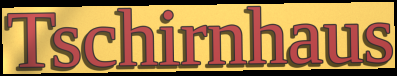
Tschirnhaus